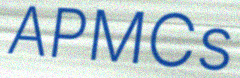
APMCs